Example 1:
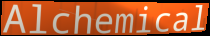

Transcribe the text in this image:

Alchemical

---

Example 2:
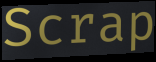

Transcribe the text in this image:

Scrap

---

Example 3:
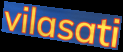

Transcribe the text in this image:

vilasati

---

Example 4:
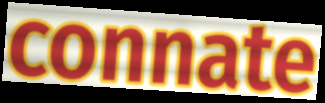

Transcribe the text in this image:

connate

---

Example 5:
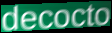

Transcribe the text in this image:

decocto